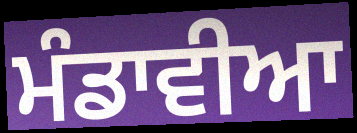
ਮੰਡਾਵੀਆ